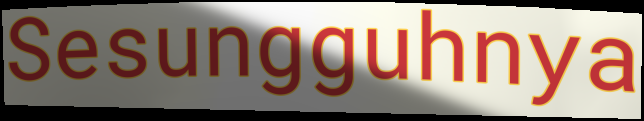
Sesungguhnya